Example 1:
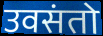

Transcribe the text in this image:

उवसंतो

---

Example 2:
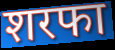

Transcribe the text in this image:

शरफा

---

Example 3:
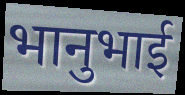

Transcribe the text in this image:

भानुभाई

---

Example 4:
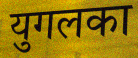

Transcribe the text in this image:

युगलका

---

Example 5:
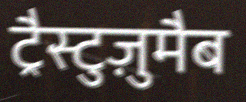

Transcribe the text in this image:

ट्रैस्टुज़ुमैब